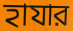
হাযার